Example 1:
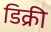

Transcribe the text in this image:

डिक्री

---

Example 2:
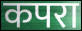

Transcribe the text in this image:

कपरा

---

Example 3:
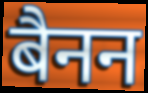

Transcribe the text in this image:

बैनन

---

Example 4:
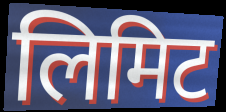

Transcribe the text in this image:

लिमिट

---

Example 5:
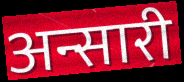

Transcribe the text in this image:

अन्सारी